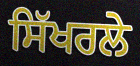
ਸਿੱਖਰਲੇ